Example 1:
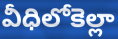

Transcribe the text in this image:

వీధిలోకెల్లా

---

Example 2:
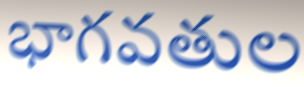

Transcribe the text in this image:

భాగవతుల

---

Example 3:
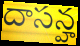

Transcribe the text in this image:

దాసన్హ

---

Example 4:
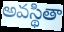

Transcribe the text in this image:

అవస్థితా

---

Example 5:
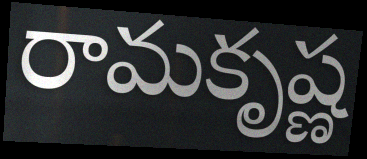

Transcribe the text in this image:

రామకృష్ణ